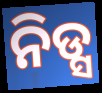
ନିଡ୍ସ